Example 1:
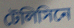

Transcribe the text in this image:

টেলিসিনে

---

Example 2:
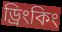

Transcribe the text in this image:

ড্রিংকিং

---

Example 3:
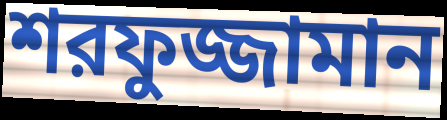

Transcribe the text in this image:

শরফুজ্জামান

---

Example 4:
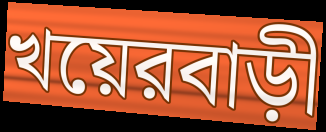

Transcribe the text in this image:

খয়েরবাড়ী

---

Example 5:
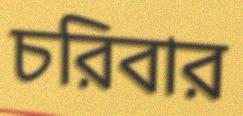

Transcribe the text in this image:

চরিবার